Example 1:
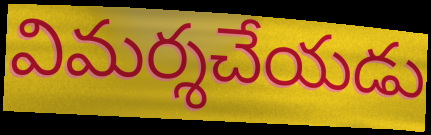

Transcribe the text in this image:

విమర్శచేయడు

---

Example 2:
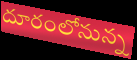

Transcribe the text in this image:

దూరంలోనున్న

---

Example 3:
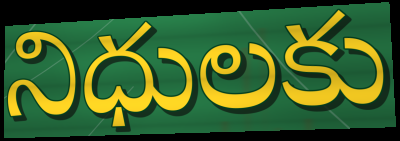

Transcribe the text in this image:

నిధులకు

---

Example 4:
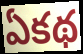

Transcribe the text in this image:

ఏకథ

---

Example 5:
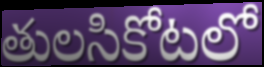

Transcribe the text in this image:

తులసికోటలో